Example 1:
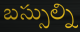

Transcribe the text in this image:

బస్సుల్ని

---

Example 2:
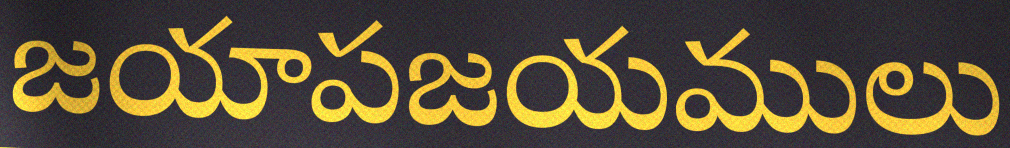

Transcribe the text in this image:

జయాపజయములు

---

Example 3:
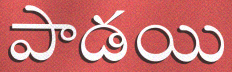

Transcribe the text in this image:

పాడయి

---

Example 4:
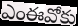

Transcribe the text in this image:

ఎంఈవోకు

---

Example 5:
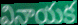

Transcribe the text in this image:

వినాయక